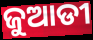
ଜୁଆଡୀ